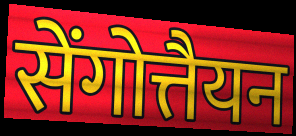
सेंगोत्तैयन